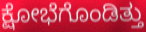
ಕ್ಷೋಭೆಗೊಂಡಿತ್ತು